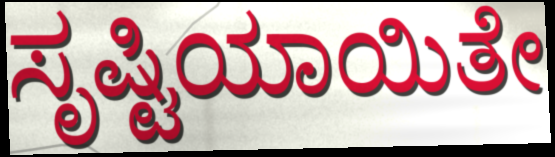
ಸೃಷ್ಟಿಯಾಯಿತೇ